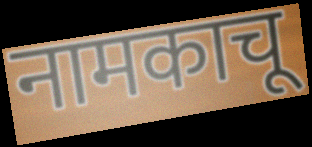
नामकाचू